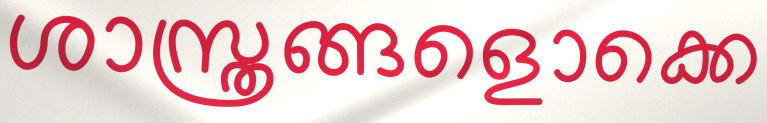
ശാസ്ത്രങ്ങളൊക്കെ